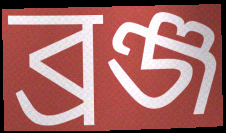
ব্ৰঞ্জ